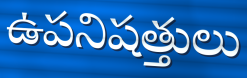
ఉపనిషత్తులు